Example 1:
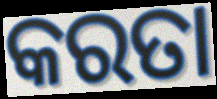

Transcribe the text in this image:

କରତା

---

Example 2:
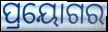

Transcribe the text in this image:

ପ୍ରୟୋଗର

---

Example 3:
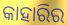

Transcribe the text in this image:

କାହାରିର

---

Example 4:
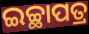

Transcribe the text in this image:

ଇଚ୍ଛାପତ୍ର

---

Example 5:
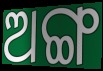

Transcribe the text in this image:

ଅଙ୍ଗ